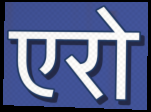
एरो